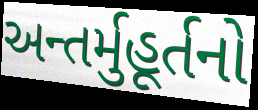
અન્તર્મુહૂર્તનો